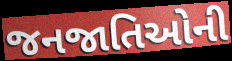
જનજાતિઓની